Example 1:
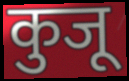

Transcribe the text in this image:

कुजू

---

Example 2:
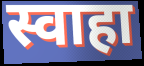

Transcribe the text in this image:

स्वाहा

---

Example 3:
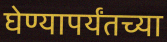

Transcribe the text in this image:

घेण्यापर्यंतच्या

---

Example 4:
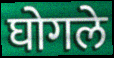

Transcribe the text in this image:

घोगले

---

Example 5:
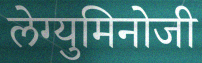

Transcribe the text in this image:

लेग्युमिनोजी